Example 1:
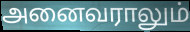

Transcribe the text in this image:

அனைவராலும்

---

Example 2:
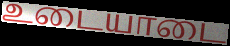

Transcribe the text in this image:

உடையாடை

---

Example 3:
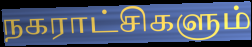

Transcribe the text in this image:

நகராட்சிகளும்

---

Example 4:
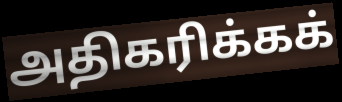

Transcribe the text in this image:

அதிகரிக்கக்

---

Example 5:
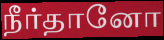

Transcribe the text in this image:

நீர்தானோ